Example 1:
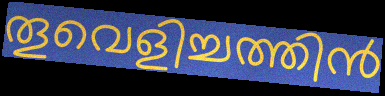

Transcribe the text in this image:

തൂവെളിച്ചത്തിൻ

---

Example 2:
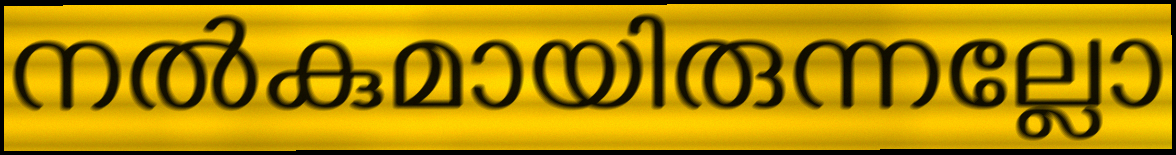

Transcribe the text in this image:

നൽകുമായിരുന്നല്ലോ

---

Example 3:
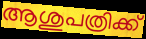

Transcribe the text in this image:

ആശുപത്രിക്ക്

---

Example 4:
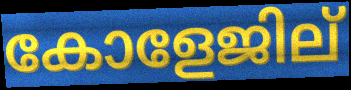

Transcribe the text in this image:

കോളേജില്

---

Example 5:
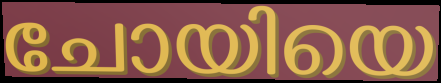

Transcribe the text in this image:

ചോയിയെ